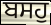
ਬਸਹੁ